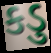
કડુ